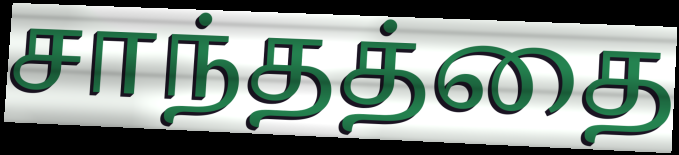
சாந்தத்தை